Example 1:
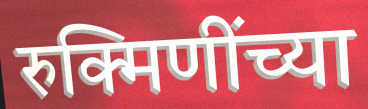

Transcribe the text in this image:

रुक्मिणींच्या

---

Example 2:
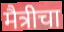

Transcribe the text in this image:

मैत्रीचा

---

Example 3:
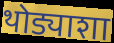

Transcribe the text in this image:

थोड्याशा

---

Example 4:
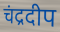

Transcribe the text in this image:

चंद्रदीप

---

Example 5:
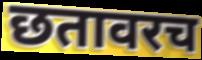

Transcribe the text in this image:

छतावरच